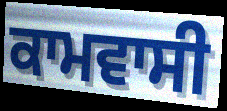
ਕਾਮਵਾਸੀ